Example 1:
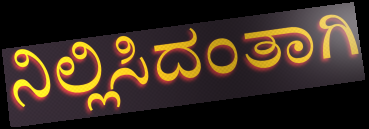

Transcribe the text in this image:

ನಿಲ್ಲಿಸಿದಂತಾಗಿ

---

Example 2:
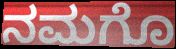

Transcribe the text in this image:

ನಮಗೊ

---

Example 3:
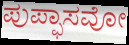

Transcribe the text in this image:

ಪುಪ್ಫಾಸವೋ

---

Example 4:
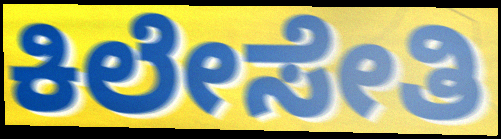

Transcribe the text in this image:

ಕಿಲೇಸೇತಿ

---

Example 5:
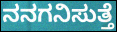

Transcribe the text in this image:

ನನಗನಿಸುತ್ತೆ